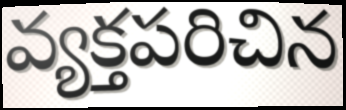
వ్యక్తపరిచిన